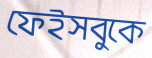
ফেইসবুকে